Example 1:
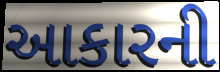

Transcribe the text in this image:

આકારની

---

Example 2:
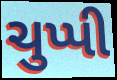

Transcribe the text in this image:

ચુપ્પી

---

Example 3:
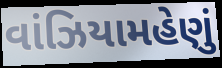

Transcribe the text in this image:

વાંઝિયામહેણું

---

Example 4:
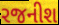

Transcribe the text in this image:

રજનીશ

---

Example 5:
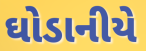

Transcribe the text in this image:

ઘોડાનીયે